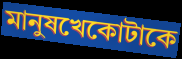
মানুষখেকোটাকে